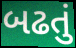
બઢતું